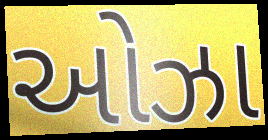
ઓઝા